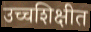
उच्चशिक्षीत